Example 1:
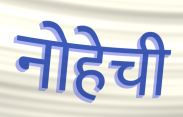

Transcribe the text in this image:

नोहेची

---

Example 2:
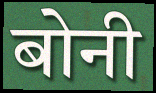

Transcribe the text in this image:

बोनी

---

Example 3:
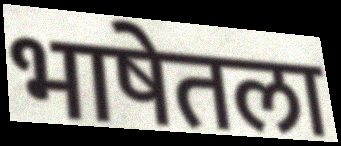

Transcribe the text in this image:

भाषेतला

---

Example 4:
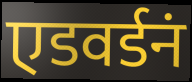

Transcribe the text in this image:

एडवर्डनं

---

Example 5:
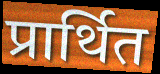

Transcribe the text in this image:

प्रार्थित